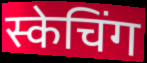
स्केचिंग